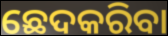
ଛେଦକରିବା